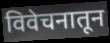
विवेचनातून